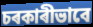
চৰকাৰীভাবে